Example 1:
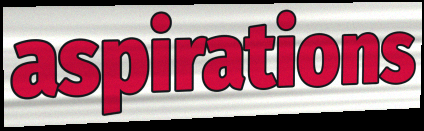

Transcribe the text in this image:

aspirations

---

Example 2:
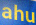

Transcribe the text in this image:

ahu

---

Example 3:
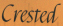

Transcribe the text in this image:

Crested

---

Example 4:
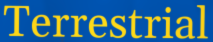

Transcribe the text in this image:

Terrestrial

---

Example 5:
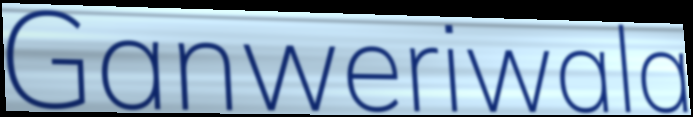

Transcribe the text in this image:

Ganweriwala